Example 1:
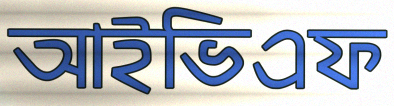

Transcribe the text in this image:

আইভিএফ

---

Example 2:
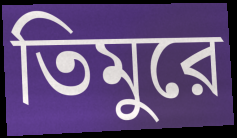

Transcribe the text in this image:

তিমুরে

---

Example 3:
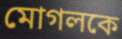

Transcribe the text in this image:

মোগলকে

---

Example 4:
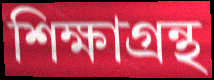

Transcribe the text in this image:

শিক্ষাগ্রন্থ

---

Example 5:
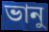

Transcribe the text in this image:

ভানু